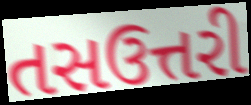
તસઉત્તરી